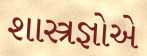
શાસ્ત્રજ્ઞોએ